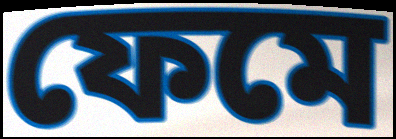
ফেমে